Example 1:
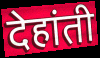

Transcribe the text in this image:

देहांती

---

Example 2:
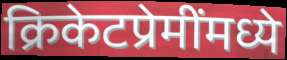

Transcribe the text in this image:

क्रिकेटप्रेमींमध्ये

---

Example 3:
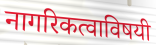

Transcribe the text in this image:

नागरिकत्वाविषयी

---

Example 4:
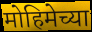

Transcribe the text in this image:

मोहिमेच्या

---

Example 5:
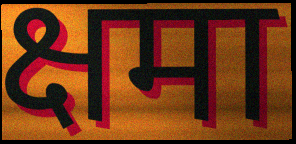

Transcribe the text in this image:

क्षमा